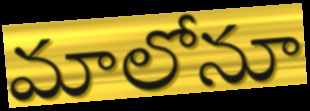
మాలోనూ